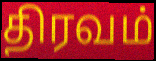
திரவம்